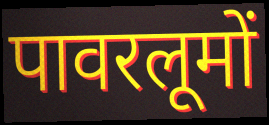
पावरलूमों